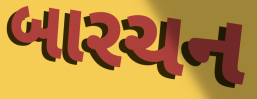
બારચન